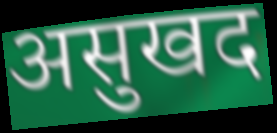
असुखद